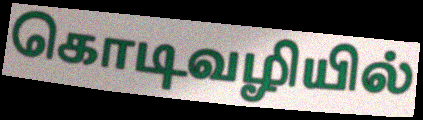
கொடிவழியில்